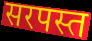
सरपस्त